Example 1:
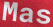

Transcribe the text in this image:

Mas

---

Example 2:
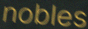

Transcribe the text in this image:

nobles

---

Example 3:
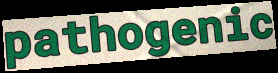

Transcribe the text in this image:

pathogenic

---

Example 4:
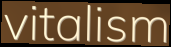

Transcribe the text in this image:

vitalism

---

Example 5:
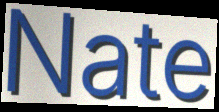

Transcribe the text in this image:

Nate